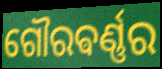
ଗୌରଵର୍ଣ୍ଣର